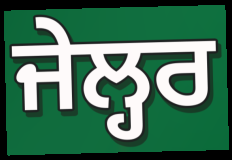
ਜੇਲ੍ਹਰ